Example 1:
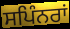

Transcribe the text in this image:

ਸਪਿੰਨਰਾਂ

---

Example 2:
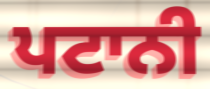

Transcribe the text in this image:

ਪਟਾਨੀ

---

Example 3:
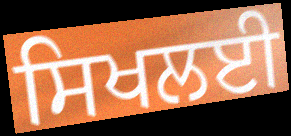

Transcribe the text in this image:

ਸਿਖਲਈ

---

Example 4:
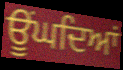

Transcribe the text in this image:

ਊਂਘਦਿਆਂ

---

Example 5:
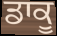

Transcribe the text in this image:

ਡਾਕੂ